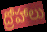
ద్రోహాలు